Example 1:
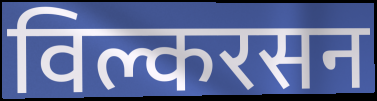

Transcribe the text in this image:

विल्करसन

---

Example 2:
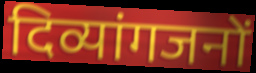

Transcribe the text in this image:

दिव्यांगजनों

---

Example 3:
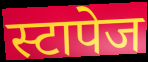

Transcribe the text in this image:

स्टापेज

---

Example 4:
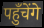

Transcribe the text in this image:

पहुँचेंगे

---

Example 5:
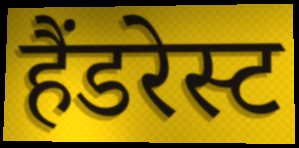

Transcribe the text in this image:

हैंडरेस्ट